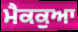
ਮੈਕਕੁਆ